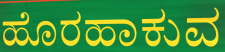
ಹೊರಹಾಕುವ